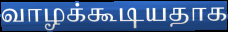
வாழக்கூடியதாக